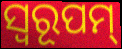
ସ୍ୱରୂପମ୍